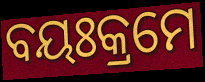
ବୟଃକ୍ରମେ